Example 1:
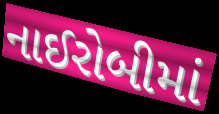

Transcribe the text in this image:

નાઈરોબીમાં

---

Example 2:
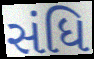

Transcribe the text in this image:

સંધિ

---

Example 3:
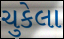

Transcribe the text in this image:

ચુકેલા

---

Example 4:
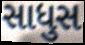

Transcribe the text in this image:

સાધુસ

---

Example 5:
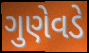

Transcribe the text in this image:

ગુણેવડે